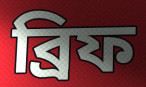
ব্রিফ